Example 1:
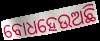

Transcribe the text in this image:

ବୋଧହେଉଅଛି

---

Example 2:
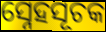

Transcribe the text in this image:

ସ୍ନେହସୂଚକ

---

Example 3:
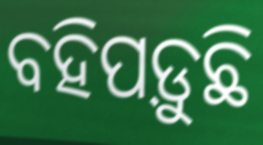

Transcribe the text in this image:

ବହିପଡ଼ୁଛି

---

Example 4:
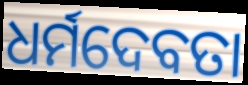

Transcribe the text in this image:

ଧର୍ମଦେବତା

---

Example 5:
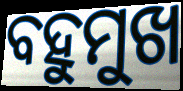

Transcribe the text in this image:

ବହୁମୁଖ